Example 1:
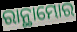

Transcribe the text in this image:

ରାନ୍ଥାମ୍ଭୋର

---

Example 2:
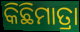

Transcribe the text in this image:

କିଛିମାତ୍ରା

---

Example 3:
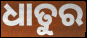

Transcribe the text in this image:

ଧାତୁର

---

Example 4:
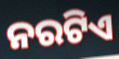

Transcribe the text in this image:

ନରଟିଏ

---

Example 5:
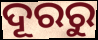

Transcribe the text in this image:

ଦୂରରୁ